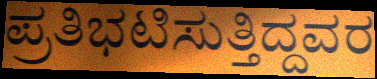
ಪ್ರತಿಭಟಿಸುತ್ತಿದ್ದವರ